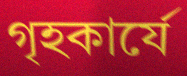
গৃহকার্যে